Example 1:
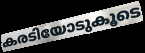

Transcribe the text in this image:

കരടിയോടുകൂടെ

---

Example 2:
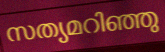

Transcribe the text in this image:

സത്യമറിഞ്ഞു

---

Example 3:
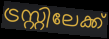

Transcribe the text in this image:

ട്രസ്റ്റിലേക്ക്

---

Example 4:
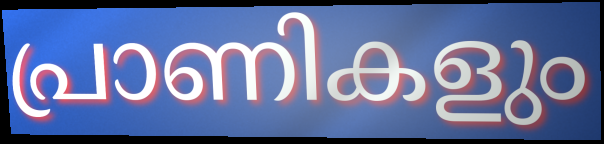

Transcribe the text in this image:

പ്രാണികളും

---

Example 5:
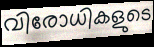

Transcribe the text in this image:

വിരോധികളുടെ